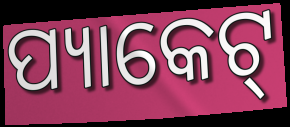
ପ୍ୟାକେଟ୍